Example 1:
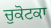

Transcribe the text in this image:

ਚੁਕੋਟਕਾ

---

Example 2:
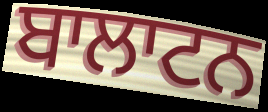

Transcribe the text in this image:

ਬਾਲਾਟਨ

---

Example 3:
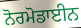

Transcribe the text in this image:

ਨੋਰਮੋਡਾਈਨ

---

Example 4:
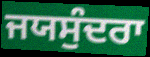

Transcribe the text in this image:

ਜਯਸੁੰਦਰਾ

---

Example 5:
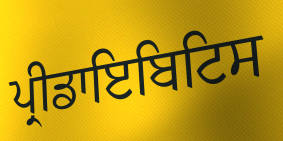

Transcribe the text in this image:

ਪ੍ਰੀਡਾਇਬਿਟਿਸ